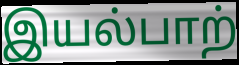
இயல்பாற்